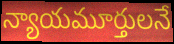
న్యాయమూర్తులనే